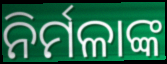
ନିର୍ମଳାଙ୍କ